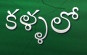
కళ్ళలో